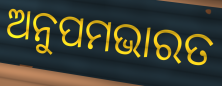
ଅନୁପମଭାରତ